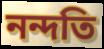
নন্দতি